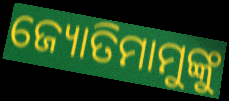
ଜ୍ୟୋତିମାମୁଙ୍କୁ